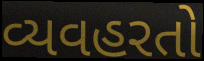
વ્યવહરતો